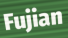
Fujian